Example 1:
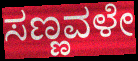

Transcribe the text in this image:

ಸಣ್ಣವಳೇ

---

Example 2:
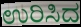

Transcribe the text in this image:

ಉರಿಸಿದ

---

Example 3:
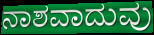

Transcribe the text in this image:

ನಾಶವಾದುವು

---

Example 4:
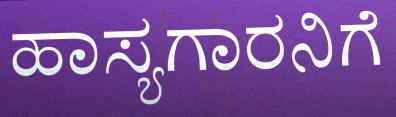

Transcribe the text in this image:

ಹಾಸ್ಯಗಾರನಿಗೆ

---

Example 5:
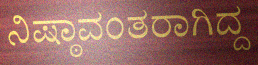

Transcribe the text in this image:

ನಿಷ್ಠಾವಂತರಾಗಿದ್ದ